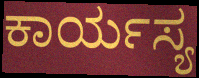
ಕಾರ್ಯಸ್ಯ